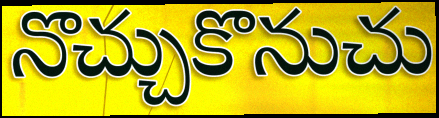
నొచ్చుకొనుచు